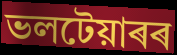
ভলটেয়াৰৰ